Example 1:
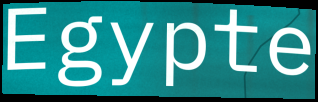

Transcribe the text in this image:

Egypte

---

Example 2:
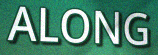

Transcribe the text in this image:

ALONG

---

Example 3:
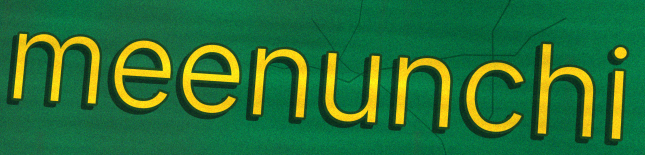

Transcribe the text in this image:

meenunchi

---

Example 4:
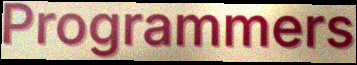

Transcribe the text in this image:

Programmers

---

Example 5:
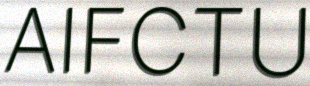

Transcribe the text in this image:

AIFCTU